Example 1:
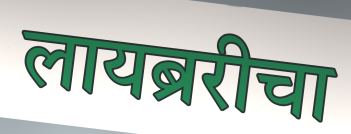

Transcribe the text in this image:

लायब्ररीचा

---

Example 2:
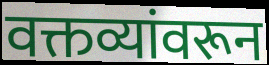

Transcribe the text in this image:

वक्तव्यांवरून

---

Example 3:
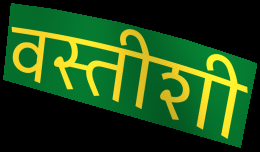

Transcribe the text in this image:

वस्‍तीशी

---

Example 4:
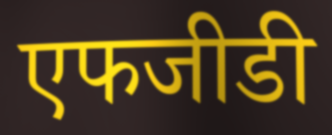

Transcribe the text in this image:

एफजीडी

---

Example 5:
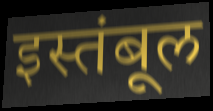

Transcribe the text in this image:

इस्तंबूल